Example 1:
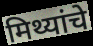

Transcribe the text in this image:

मिथ्यांचे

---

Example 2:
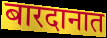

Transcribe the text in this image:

बारदानात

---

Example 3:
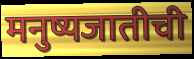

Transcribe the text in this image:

मनुष्यजातीची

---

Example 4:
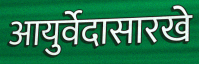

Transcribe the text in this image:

आयुर्वेदासारखे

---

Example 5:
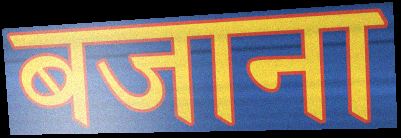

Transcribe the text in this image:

बजाना